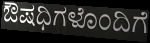
ಔಷಧಿಗಳೊಂದಿಗೆ